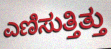
ಎಣಿಸುತ್ತಿತ್ತು